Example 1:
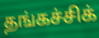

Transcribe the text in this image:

தங்கச்சிக்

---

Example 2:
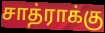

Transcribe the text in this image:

சாத்ராக்கு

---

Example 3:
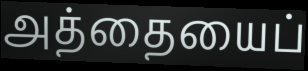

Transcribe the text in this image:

அத்தையைப்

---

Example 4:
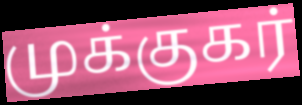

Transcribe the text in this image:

முக்குகர்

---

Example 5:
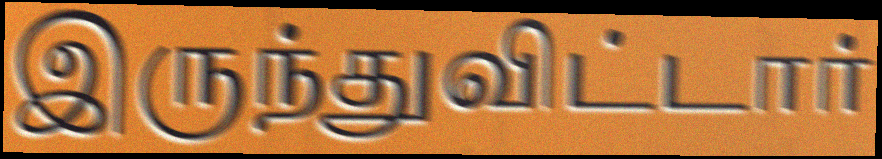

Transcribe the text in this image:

இருந்துவிட்டார்